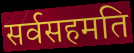
सर्वसहमति